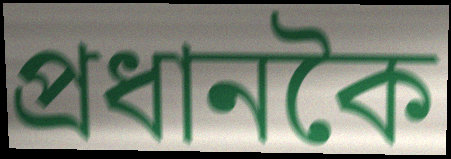
প্ৰধানকৈ